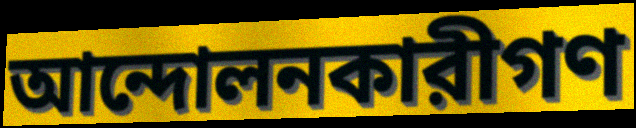
আন্দোলনকারীগণ